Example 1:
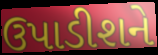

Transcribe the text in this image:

ઉપાડીશને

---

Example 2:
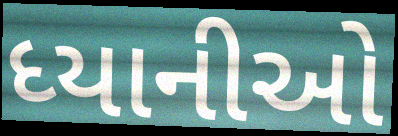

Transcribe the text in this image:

ધ્યાનીઓ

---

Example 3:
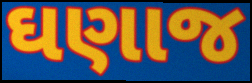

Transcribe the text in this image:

ઘણાજ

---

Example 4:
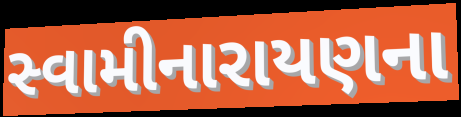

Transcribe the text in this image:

સ્વામીનારાયણના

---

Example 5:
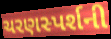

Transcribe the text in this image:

ચરણસ્પર્શની